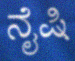
ನೈಷಿ